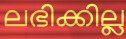
ലഭിക്കില്ല